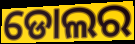
ଡୋଲର